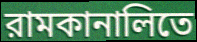
রামকানালিতে